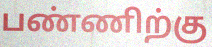
பண்ணிற்கு